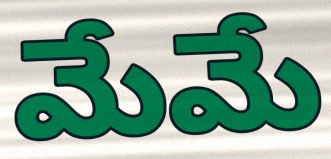
మేమే